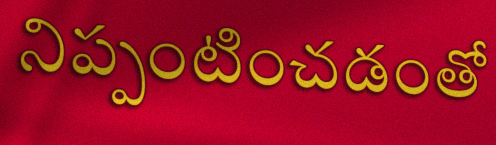
నిప్పంటించడంతో